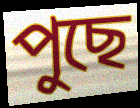
পুছে